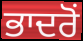
ਭਾਦਰੋਂ